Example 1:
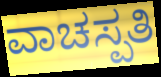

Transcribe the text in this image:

ವಾಚಸ್ಪತಿ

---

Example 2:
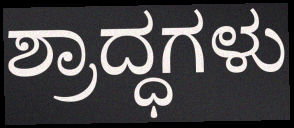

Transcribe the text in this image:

ಶ್ರಾದ್ಧಗಳು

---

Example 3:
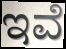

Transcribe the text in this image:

ಇವೆ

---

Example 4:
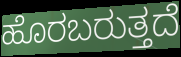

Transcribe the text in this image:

ಹೊರಬರುತ್ತದೆ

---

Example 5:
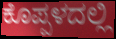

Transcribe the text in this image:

ಕೊಪ್ಪಳದಲ್ಲಿ